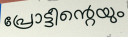
പ്രോട്ടീന്റെയും